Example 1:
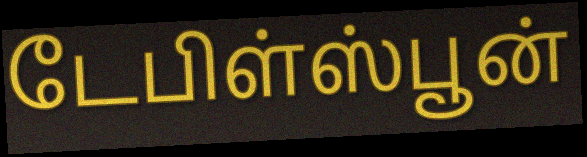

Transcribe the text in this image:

டேபிள்ஸ்பூன்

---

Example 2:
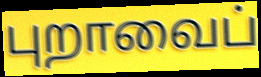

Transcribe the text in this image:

புறாவைப்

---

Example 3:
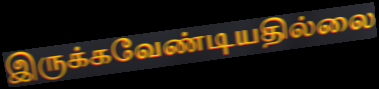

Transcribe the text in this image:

இருக்கவேண்டியதில்லை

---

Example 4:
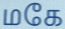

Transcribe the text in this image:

மகே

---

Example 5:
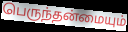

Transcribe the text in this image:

பெருந்தன்மையும்